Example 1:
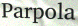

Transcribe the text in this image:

Parpola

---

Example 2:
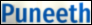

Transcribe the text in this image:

Puneeth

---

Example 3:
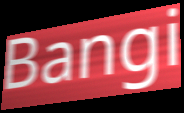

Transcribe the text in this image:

Bangi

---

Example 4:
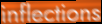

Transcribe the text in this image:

inflections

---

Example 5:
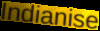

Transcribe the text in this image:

Indianise